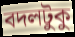
বদলটুকু